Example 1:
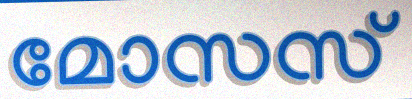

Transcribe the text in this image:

മോസസ്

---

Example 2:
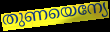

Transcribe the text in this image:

തുണയെന്യേ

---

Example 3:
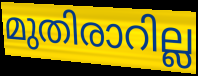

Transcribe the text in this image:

മുതിരാറില്ല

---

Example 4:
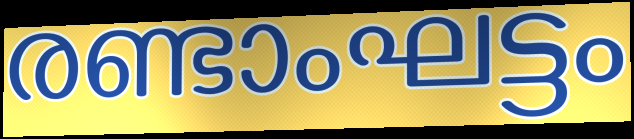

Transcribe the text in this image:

രണ്ടാംഘട്ടം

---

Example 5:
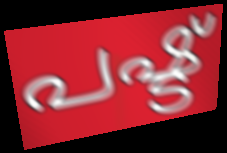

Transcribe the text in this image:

പഷ്ട്